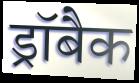
ड्रॉबैक